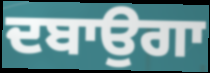
ਦਬਾਉਗਾ